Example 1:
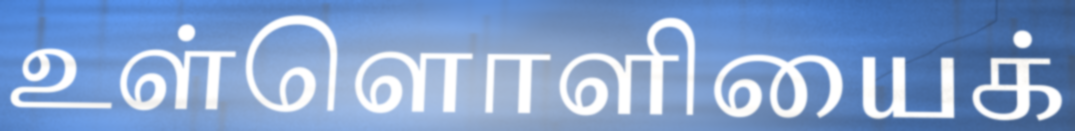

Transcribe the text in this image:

உள்ளொளியைக்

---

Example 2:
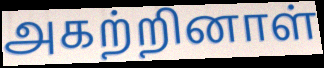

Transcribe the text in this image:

அகற்றினாள்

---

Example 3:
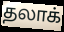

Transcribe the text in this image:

தலாக்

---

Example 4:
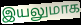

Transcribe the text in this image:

இயலுமாக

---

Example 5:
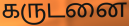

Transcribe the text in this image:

கருடனை